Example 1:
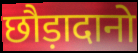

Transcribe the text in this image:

छौड़ादानो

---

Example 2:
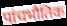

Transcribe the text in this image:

पांचभौतिक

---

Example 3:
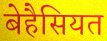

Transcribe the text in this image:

बेहैसियत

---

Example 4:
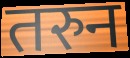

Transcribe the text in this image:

तरुन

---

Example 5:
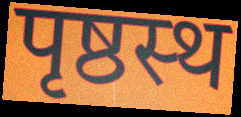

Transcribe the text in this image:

पृष्ठस्थ